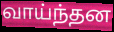
வாய்ந்தன